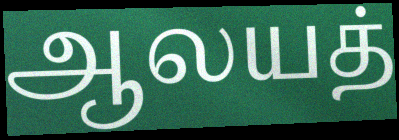
ஆலயத்